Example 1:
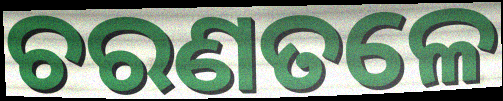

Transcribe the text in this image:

ଚରଣତଳେ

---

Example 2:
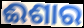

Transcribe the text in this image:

ଈଶାର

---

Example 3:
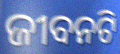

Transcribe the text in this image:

ଜୀବନଟି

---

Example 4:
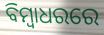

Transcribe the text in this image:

ବିମ୍ୱାଧରରେ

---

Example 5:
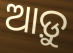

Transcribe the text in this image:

ଆଡ଼ୁ